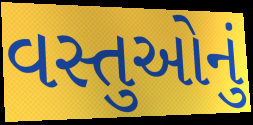
વસ્તુઓનું